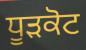
ਧੂੜਕੋਟ